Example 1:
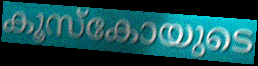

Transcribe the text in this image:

കൂസ്കോയുടെ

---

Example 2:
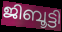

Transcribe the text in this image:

ജിബൂട്ടി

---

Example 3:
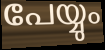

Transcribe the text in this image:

പേയ്യും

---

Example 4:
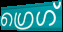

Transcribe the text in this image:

ഗ്രെഗ്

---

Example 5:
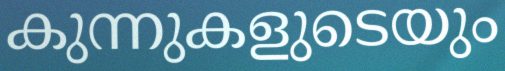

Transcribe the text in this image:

കുന്നുകളുടെയും